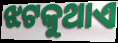
ଝଟକୁଥାଏ